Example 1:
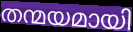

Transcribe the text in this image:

തന്മയമായി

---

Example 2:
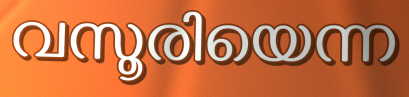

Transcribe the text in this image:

വസൂരിയെന്ന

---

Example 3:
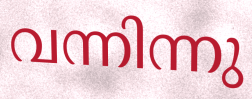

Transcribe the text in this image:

വന്നിന്നു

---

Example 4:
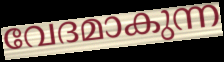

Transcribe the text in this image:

വേദമാകുന്ന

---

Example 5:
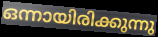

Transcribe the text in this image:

ഒന്നായിരിക്കുന്നു